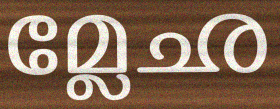
മ്ലേഛ